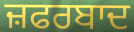
ਜ਼ਫਰਬਾਦ